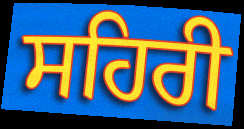
ਸਹਿਰੀ